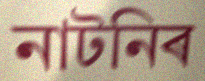
নাটনিৰ